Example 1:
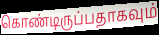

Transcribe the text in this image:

கொண்டிருப்பதாகவும்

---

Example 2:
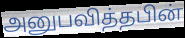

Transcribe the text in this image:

அனுபவித்தபின்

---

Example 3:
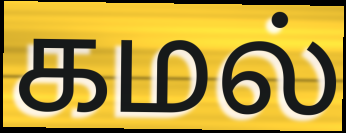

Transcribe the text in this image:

கமல்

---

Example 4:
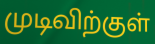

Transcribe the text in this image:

முடிவிற்குள்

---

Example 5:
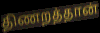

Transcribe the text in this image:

திணறத்தான்